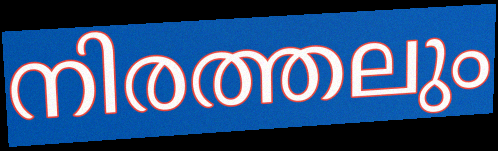
നിരത്തലും